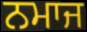
ਨਮਾਜ